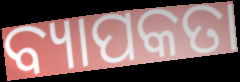
ବ୍ୟାପକତା